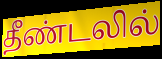
தீண்டலில்